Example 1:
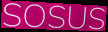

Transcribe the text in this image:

SOSUS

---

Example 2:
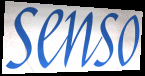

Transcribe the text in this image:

senso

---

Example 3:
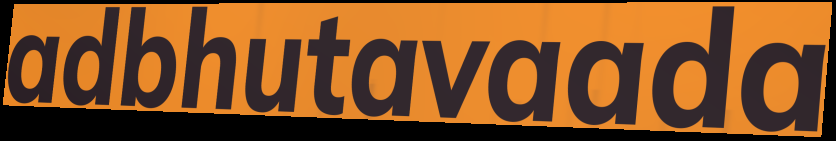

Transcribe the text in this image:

adbhutavaada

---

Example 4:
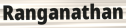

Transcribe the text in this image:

Ranganathan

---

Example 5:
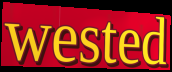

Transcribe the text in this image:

wested